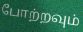
போற்றவும்